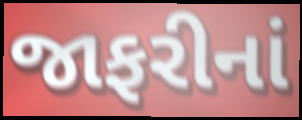
જાફરીનાં